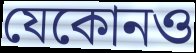
যেকোনও